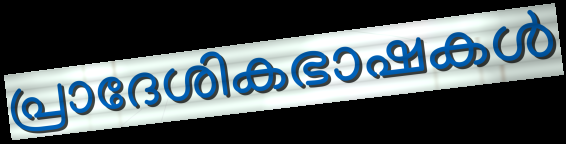
പ്രാദേശികഭാഷകൾ